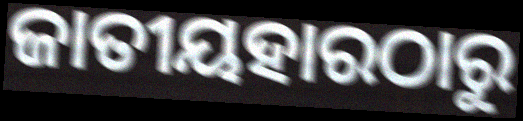
ଜାତୀୟହାରଠାରୁ